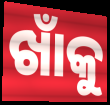
ଖାଁକୁ